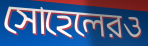
সোহেলেরও